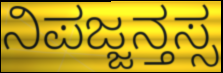
ನಿಪಜ್ಜನ್ತಸ್ಸ